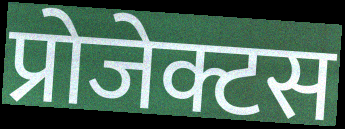
प्रोजेक्टस